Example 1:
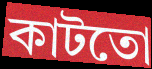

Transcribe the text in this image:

কাটতো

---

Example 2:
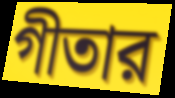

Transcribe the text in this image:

গীতার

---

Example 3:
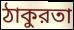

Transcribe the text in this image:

ঠাকুরতা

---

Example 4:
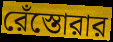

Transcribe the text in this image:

রেঁস্তোরার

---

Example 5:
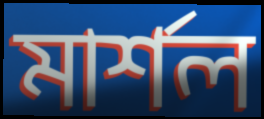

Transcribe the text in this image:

মার্শল